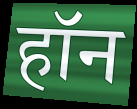
हॉन